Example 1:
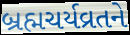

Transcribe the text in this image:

બ્રહ્મચર્યવ્રતને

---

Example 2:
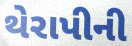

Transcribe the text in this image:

થેરાપીની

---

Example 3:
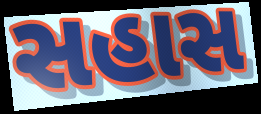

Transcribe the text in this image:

સહાસ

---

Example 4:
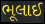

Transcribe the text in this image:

ભૂલાઈ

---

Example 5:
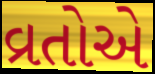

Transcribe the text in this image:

વ્રતોએ